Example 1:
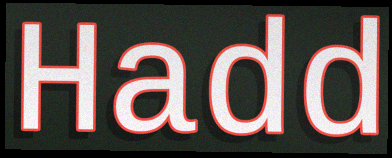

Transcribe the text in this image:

Hadd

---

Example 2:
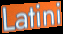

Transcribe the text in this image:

Latini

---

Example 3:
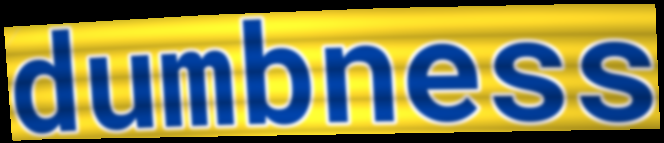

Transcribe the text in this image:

dumbness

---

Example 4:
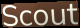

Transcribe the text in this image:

Scout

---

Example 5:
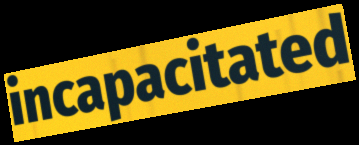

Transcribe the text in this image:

incapacitated